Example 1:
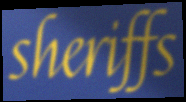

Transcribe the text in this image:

sheriffs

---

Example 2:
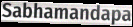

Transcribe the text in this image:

Sabhamandapa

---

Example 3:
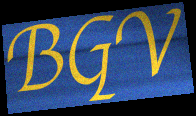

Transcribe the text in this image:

BGV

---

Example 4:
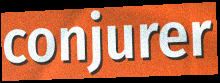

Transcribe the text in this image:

conjurer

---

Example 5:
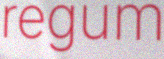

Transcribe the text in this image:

regum